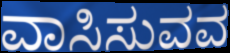
ವಾಸಿಸುವವ